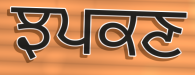
ਝਪਕਣ